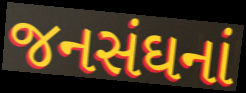
જનસંઘનાં